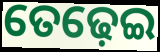
ତେଢ଼େଇ